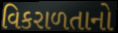
વિકરાળતાનો